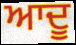
ਆਦੂ